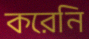
করেনি